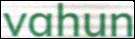
vahun